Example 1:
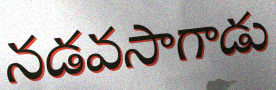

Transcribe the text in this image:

నడవసాగాడు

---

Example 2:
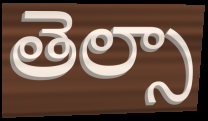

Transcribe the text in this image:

తెల్సా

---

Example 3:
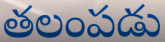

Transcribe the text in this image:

తలంపడు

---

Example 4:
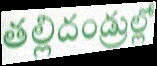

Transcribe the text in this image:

తల్లిదండ్రుల్లో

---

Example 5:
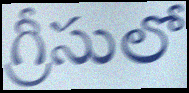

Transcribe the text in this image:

గ్రీసులో